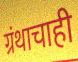
ग्रंथाचाही